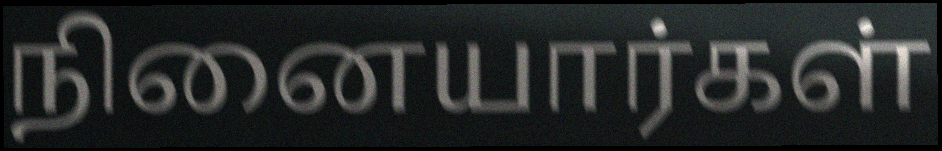
நினையார்கள்